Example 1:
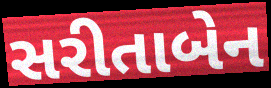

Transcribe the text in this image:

સરીતાબેન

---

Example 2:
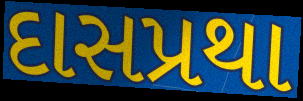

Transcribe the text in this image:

દાસપ્રથા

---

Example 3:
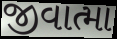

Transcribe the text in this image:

જીવાત્મા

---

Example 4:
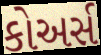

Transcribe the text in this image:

કોઅર્સ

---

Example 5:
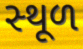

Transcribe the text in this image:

સ્‍થૂળ